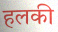
हलकी